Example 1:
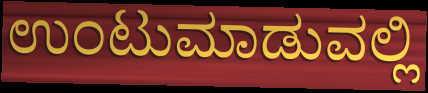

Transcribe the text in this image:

ಉಂಟುಮಾಡುವಲ್ಲಿ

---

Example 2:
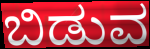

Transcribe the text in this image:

ಬಿಡುವ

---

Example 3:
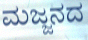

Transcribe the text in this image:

ಮಜ್ಜನದ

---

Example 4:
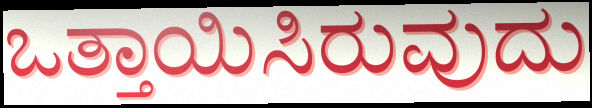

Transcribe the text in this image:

ಒತ್ತಾಯಿಸಿರುವುದು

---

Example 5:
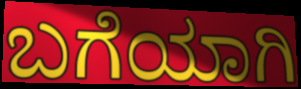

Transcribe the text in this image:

ಬಗೆಯಾಗಿ